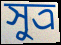
সুত্ৰ